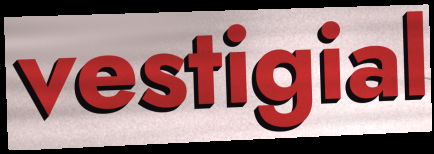
vestigial